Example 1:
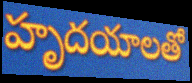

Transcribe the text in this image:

హృదయాలతో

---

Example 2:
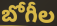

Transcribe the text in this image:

బోగీల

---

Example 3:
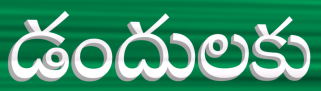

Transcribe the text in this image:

డందులకు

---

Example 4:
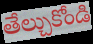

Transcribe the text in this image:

తేల్చుకోండి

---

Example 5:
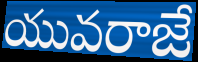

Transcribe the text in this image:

యువరాజే